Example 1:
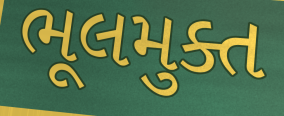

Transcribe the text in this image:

ભૂલમુક્ત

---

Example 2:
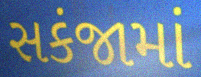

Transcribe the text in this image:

સકંજામાં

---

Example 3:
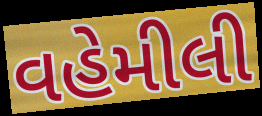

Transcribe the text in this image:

વહેમીલી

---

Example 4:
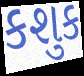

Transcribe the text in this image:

કશુક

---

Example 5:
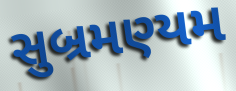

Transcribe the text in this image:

સુબ્રમણ્યમ